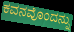
ಕವನವೊಂದನ್ನು